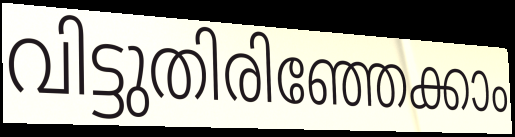
വിട്ടുതിരിഞ്ഞേക്കാം